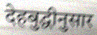
देहबुद्धीनुसार